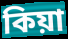
কিয়া